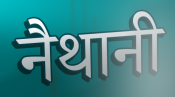
नैथानी